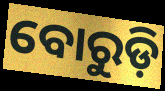
ବୋରୁଡ଼ି